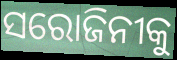
ସରୋଜିନୀକୁ